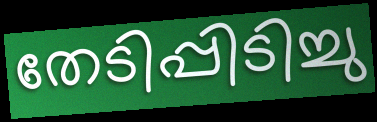
തേടിപ്പിടിച്ചു